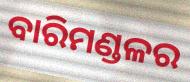
ବାରିମଣ୍ଡଳର